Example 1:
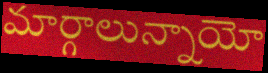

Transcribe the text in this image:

మార్గాలున్నాయో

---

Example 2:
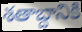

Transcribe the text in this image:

శతాబ్దానికి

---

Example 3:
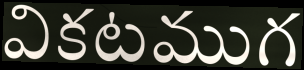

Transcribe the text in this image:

వికటముగ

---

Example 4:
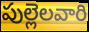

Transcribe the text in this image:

పుల్లెలవారి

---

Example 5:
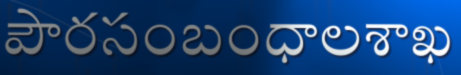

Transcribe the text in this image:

పౌరసంబంధాలశాఖ